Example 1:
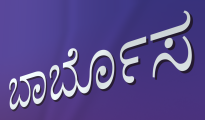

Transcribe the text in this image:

ಬಾರ್ಬೊಸ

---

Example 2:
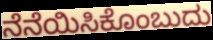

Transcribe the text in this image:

ನೆನೆಯಿಸಿಕೊಂಬುದು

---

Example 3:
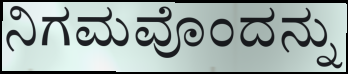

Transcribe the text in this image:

ನಿಗಮವೊಂದನ್ನು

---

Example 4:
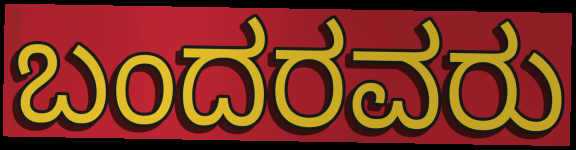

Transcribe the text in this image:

ಬಂದರವರು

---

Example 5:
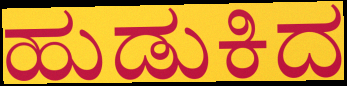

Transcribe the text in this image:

ಹುಡುಕಿದ